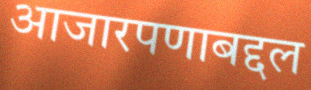
आजारपणाबद्दल